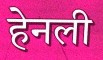
हेनली